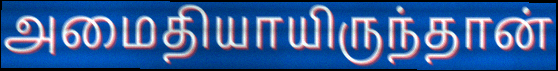
அமைதியாயிருந்தான்